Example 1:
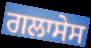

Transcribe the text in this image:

ਗਲਾਸੇਸ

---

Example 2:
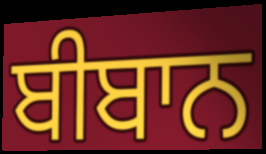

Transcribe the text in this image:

ਬੀਬਾਨ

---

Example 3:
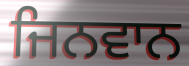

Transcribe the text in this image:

ਜਿਨਵਾਨ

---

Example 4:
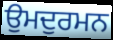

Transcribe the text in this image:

ਉਮਦੁਰਮਨ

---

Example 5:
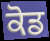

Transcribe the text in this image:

ਕੋਡ